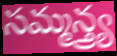
సమ్మన్త్ర్య